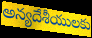
అన్యదేశీయులకు